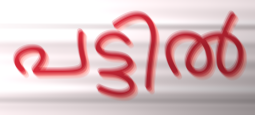
പട്ടിൽ